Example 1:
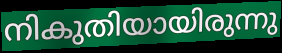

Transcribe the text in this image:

നികുതിയായിരുന്നു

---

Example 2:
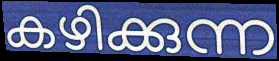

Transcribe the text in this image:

കഴിക്കുന്ന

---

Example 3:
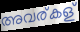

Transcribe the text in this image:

അവര്കള്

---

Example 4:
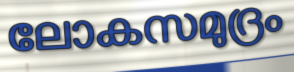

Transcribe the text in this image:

ലോകസമുദ്രം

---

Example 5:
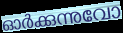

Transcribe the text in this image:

ഓർക്കുന്നുവോ